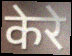
केरे